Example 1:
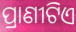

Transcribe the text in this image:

ପ୍ରାଣୀଟିଏ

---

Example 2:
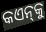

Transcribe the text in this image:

କଏନ୍‌କୁ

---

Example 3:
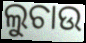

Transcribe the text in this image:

ଲୁଚାଉ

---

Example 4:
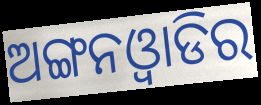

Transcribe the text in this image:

ଅଙ୍ଗନଓ୍ବାଡିର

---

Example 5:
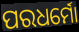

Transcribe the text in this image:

ପରଧର୍ମୋ